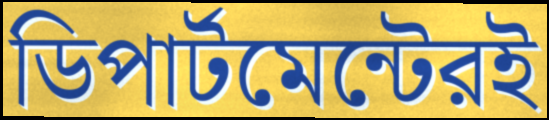
ডিপার্টমেন্টেরই